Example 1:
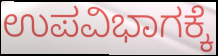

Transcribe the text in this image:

ಉಪವಿಭಾಗಕ್ಕೆ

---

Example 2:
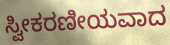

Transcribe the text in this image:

ಸ್ವೀಕರಣೀಯವಾದ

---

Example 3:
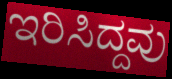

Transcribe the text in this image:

ಇರಿಸಿದ್ದವು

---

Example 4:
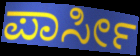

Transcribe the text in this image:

ಪಾರ್ಸೀ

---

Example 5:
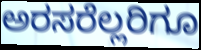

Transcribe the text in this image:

ಅರಸರೆಲ್ಲರಿಗೂ